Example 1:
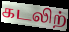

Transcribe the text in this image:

கடலிற்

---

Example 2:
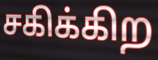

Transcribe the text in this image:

சகிக்கிற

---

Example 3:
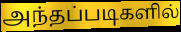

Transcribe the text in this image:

அந்தப்படிகளில்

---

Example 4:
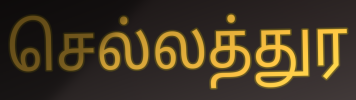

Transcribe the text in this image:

செல்லத்துர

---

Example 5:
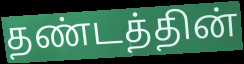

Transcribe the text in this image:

தண்டத்தின்